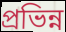
প্রভিন্ন